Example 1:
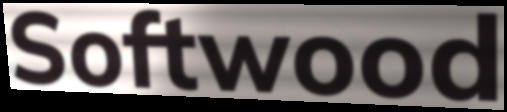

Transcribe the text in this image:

Softwood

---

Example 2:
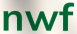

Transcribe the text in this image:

nwf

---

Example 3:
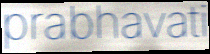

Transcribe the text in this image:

prabhavati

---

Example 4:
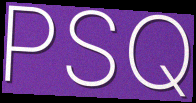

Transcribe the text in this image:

PSQ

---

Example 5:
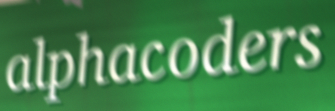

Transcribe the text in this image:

alphacoders